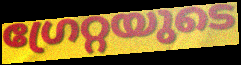
ഗ്രേറ്റയുടെ